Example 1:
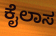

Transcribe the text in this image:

ಕೈಲಾಸ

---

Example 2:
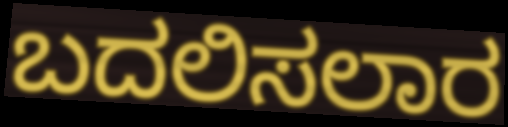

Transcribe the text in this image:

ಬದಲಿಸಲಾರ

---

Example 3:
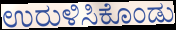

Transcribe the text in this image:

ಉರುಳಿಸಿಕೊಂಡು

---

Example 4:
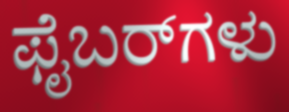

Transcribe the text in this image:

ಫೈಬರ್‌ಗಳು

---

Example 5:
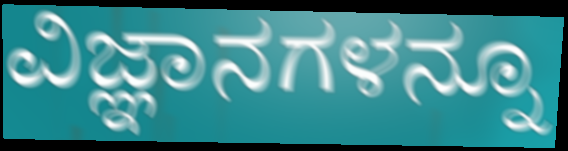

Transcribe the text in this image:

ವಿಜ್ಞಾನಗಳನ್ನೂ